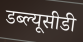
डब्ल्यूसीडी